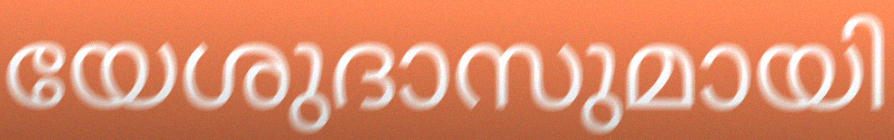
യേശുദാസുമായി